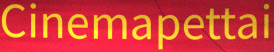
Cinemapettai